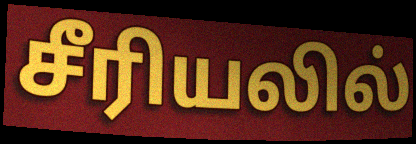
சீரியலில்